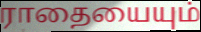
ராதையையும்